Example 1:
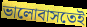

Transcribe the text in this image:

ভালোবাসতেই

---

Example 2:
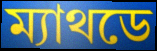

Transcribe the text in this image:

ম্যাথডে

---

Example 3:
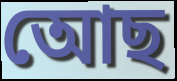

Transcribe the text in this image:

আেছ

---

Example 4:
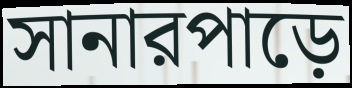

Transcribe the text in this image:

সানারপাড়ে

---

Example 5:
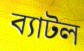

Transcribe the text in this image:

ব্যাটল